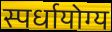
स्पर्धायोग्य